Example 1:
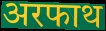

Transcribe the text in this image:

अरफाथ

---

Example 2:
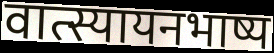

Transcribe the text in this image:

वात्स्यायनभाष्य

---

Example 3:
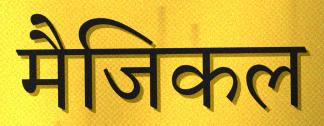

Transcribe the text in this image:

मैजिकल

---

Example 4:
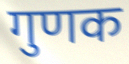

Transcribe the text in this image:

गुणक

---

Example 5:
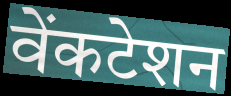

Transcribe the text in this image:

वेंकटेशन